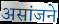
असांजने